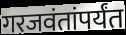
गरजवंतांपर्यंत